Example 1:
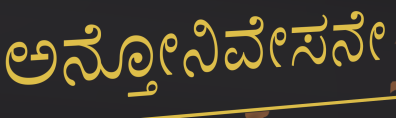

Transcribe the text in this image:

ಅನ್ತೋನಿವೇಸನೇ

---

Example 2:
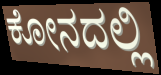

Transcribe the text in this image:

ಕೋನದಲ್ಲಿ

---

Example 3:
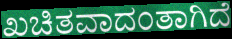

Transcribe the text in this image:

ಖಚಿತವಾದಂತಾಗಿದೆ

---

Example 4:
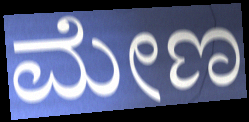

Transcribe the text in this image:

ಮೇಣ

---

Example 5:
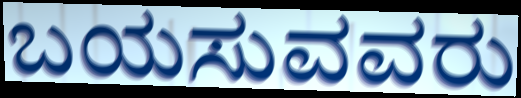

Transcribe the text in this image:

ಬಯಸುವವರು